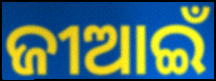
ଜୀଆଇଁ